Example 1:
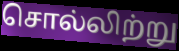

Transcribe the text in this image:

சொல்லிற்று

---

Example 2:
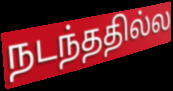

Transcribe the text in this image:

நடந்ததில்ல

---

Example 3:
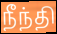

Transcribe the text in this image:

நீந்தி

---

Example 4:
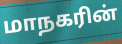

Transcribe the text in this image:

மாநகரின்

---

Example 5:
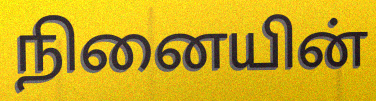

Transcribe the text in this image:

நினையின்